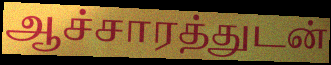
ஆச்சாரத்துடன்